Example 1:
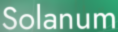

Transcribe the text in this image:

Solanum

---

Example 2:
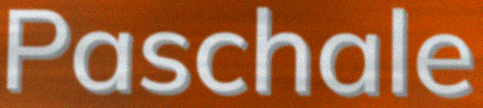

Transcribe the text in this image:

Paschale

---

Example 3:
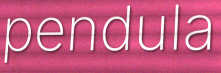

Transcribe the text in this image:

pendula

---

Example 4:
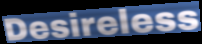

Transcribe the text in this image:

Desireless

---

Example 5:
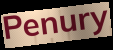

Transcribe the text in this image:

Penury